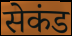
सेकंड